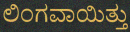
ಲಿಂಗವಾಯಿತ್ತು